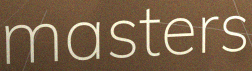
masters